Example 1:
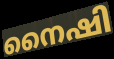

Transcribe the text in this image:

നൈഷി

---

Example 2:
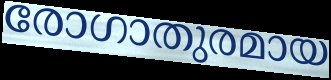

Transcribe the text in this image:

രോഗാതുരമായ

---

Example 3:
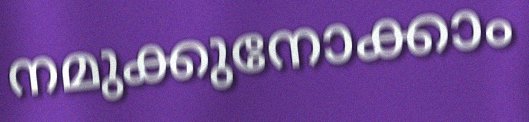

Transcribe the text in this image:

നമുക്കുനോക്കാം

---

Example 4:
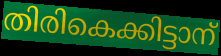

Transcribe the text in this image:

തിരികെക്കിട്ടാന്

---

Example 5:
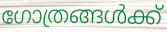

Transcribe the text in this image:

ഗോത്രങ്ങൾക്ക്